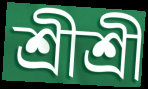
শ্রীশ্রী